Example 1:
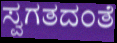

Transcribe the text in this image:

ಸ್ವಗತದಂತೆ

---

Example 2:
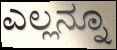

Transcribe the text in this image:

ಎಲ್ಲನ್ನೂ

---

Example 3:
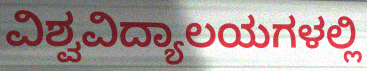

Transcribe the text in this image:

ವಿಶ್ವವಿದ್ಯಾಲಯಗಳಲ್ಲಿ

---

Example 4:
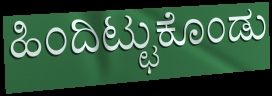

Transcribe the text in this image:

ಹಿಂದಿಟ್ಟುಕೊಂಡು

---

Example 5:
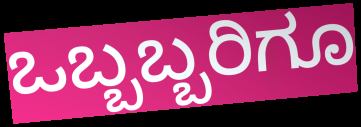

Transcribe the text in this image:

ಒಬ್ಬಬ್ಬರಿಗೂ